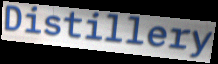
Distillery